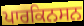
ਪਾਰਕਿਨਸਨ